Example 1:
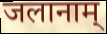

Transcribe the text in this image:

जलानाम्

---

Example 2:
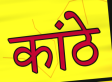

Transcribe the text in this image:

कांठे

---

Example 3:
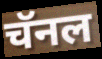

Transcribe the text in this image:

चॅनल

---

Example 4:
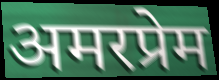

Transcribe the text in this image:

अमरप्रेम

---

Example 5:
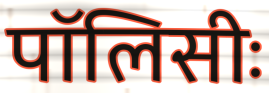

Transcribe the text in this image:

पॉलिसीः